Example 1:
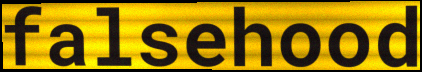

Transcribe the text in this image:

falsehood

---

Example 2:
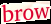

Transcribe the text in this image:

brow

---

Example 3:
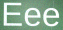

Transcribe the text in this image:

Eee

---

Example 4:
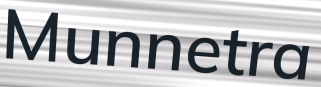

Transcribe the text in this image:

Munnetra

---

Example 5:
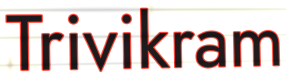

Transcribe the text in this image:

Trivikram